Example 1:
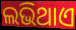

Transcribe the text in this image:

ଲଭିଥାଏ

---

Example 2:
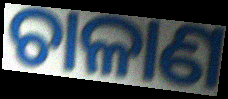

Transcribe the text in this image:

ଚାଳାଣ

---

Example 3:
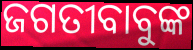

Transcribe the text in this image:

ଜଗତୀବାବୁଙ୍କ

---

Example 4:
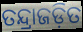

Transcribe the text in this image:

ତନ୍ଦ୍ରାଜଡ଼ିତ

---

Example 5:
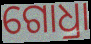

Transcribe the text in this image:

ଗୋଧ୍ରା